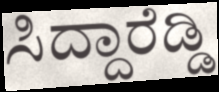
ಸಿದ್ದಾರೆಡ್ಡಿ